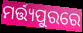
ମର୍ତ୍ତ୍ୟପୁରରେ